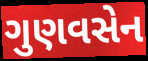
ગુણવસેન